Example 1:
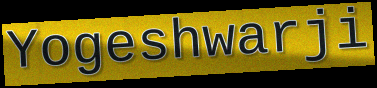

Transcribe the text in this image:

Yogeshwarji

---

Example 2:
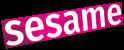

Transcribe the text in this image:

sesame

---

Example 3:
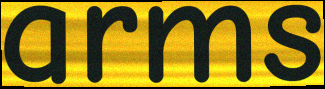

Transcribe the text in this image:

arms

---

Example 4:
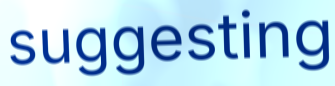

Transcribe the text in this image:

suggesting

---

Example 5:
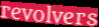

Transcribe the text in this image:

revolvers